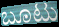
ಬೂಟು